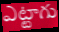
ఎట్టాగు